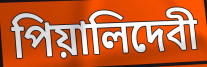
পিয়ালিদেবী